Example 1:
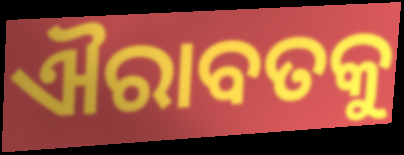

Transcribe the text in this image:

ଐରାବତକୁ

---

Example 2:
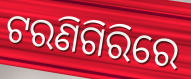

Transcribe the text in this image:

ଟରଣିଗିରିରେ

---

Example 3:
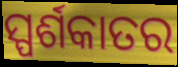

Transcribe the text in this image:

ସ୍ପର୍ଶକାତର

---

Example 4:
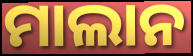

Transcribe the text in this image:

ମାଲାନ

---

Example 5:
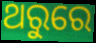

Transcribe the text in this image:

ଥରୁରେ